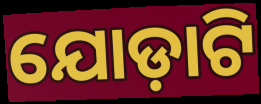
ଯୋଡ଼ାଟି